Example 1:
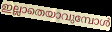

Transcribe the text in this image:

ഇല്ലാതെയാവുമ്പോൾ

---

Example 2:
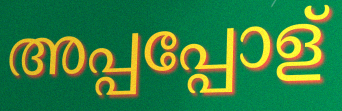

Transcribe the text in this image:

അപ്പപ്പോള്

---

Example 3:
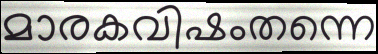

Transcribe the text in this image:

മാരകവിഷംതന്നെ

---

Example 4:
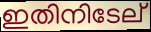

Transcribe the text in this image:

ഇതിനിടേല്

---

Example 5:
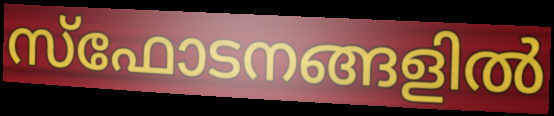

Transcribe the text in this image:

സ്ഫോടനങ്ങളിൽ